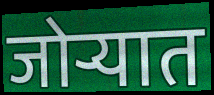
जोऱ्यात